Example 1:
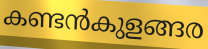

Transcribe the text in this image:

കണ്ടൻകുളങ്ങര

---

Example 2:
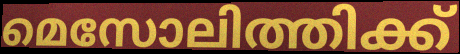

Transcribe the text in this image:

മെസോലിത്തിക്ക്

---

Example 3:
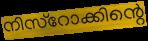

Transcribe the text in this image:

നിസ്റോക്കിന്റെ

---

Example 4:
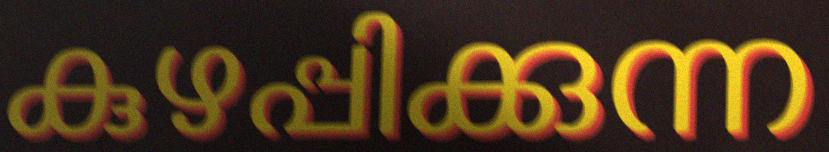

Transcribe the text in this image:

കുഴപ്പിക്കുന്ന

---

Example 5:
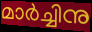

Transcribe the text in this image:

മാർച്ചിനു